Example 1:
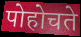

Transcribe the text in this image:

पोहोचते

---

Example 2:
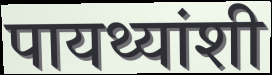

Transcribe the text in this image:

पायथ्यांशी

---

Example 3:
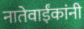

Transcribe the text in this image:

नातेवाईंकांनी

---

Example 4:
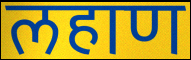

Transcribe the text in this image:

लहाण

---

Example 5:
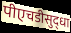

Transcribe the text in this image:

पीएचडीसुद्धा